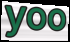
yoo